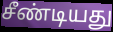
சீண்டியது